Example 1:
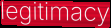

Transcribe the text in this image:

legitimacy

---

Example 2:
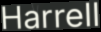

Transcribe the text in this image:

Harrell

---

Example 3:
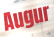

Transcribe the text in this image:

Augur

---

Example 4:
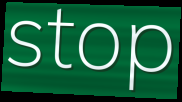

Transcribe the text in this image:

stop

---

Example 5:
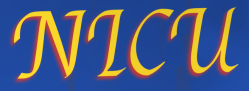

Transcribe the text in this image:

NICU